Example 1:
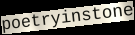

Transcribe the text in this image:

poetryinstone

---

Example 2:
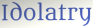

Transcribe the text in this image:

Idolatry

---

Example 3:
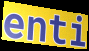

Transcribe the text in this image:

enti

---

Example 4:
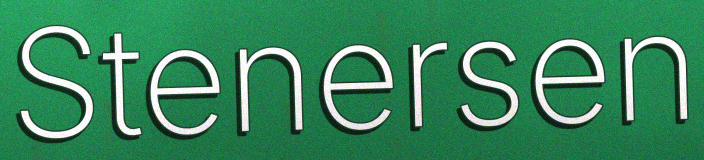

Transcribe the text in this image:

Stenersen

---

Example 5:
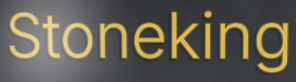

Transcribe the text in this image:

Stoneking